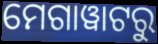
ମେଗାୱାଟରୁ